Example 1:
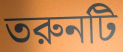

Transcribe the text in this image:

তরুনটি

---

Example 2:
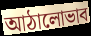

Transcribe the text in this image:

আঠালোভাব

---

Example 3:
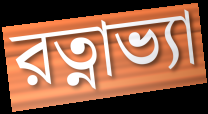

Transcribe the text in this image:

রত্নাভ্যা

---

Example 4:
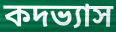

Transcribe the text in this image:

কদভ্যাস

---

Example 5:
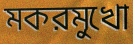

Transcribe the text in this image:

মকরমুখো